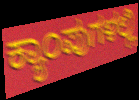
ಕ್ಯಾಂಪುಗಳಲ್ಲಿ